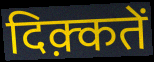
दिक़्कतें